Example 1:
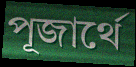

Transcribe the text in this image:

পূজার্থে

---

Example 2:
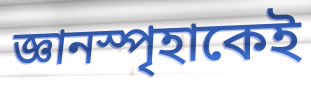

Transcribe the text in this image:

জ্ঞানস্পৃহাকেই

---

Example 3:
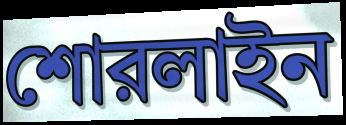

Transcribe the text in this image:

শোরলাইন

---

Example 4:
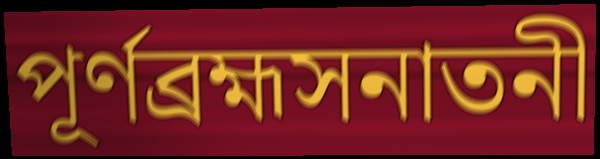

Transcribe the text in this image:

পূর্ণব্রহ্মসনাতনী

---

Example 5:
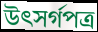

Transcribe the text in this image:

উৎসর্গপত্র